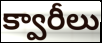
క్వారీలు